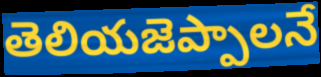
తెలియజెప్పాలనే